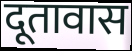
दूतावास